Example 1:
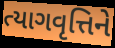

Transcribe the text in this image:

ત્યાગવૃત્તિને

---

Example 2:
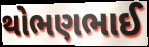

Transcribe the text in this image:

થોભણભાઈ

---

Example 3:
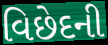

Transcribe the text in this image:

વિછેદની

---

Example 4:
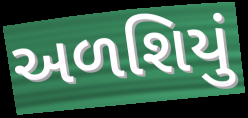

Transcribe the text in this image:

અળશિયું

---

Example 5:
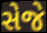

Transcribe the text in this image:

સેજે